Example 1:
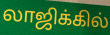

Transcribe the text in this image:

லாஜிக்கில்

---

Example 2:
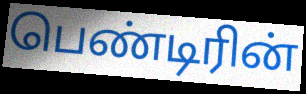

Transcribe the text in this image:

பெண்டிரின்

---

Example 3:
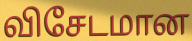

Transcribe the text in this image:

விசேடமான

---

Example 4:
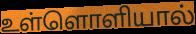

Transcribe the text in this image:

உள்ளொளியால்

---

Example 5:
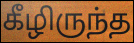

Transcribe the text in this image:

கீழிருந்த